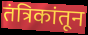
तंत्रिकांतून